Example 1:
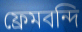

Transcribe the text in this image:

ফ্রেমবন্দি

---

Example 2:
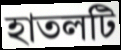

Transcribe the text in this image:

হাতলটি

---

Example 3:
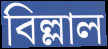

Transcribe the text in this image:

বিল্লাল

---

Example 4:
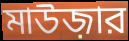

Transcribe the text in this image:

মাউজ়ার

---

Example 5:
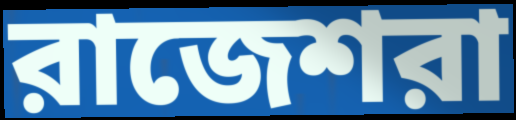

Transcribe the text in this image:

রাজেশরা